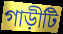
গাড়ীটি